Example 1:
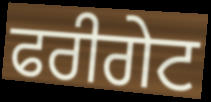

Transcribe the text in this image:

ਫਰੀਗੇਟ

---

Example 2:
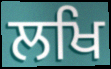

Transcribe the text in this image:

ਲਖਿ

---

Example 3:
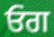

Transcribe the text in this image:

ਓਗ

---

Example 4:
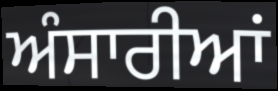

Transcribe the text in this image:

ਅੰਸਾਰੀਆਂ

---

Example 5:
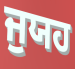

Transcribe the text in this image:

ਜੁਯਹ